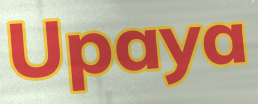
Upaya